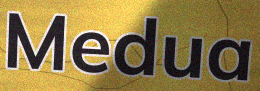
Medua